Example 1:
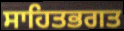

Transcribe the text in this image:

ਸਾਹਿਤਭਗਤ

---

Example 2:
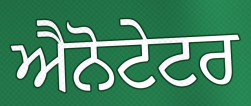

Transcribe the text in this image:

ਐਨੋਟੇਟਰ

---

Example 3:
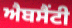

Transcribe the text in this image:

ਐਬਸੈਂਟੀ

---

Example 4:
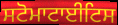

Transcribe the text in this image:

ਸਟੋਮਾਟਾਈਟਿਸ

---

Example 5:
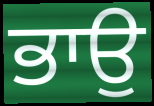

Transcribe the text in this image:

ਭਾਉ